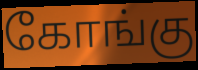
கோங்கு